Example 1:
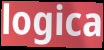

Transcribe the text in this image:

logica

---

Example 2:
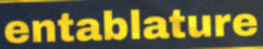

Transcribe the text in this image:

entablature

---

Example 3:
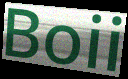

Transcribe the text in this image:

Boii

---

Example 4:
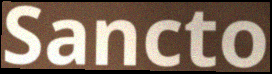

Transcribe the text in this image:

Sancto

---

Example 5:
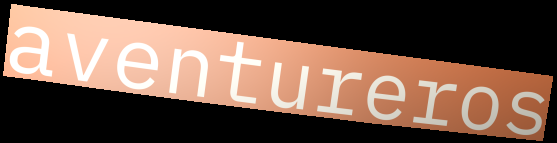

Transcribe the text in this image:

aventureros